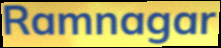
Ramnagar